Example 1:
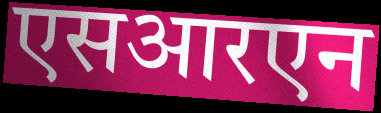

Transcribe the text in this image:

एसआरएन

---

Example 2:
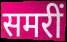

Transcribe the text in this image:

समरीं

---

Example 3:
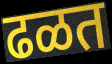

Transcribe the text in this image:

ढळत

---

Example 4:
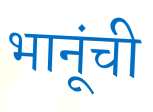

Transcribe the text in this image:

भानूंची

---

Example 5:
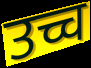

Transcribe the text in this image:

उच्च